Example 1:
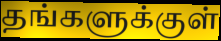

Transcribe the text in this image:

தங்களுக்குள்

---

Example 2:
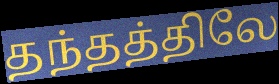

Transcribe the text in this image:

தந்தத்திலே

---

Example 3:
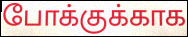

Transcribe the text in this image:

போக்குக்காக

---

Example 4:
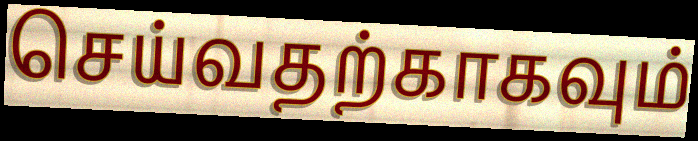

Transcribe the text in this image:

செய்வதற்காகவும்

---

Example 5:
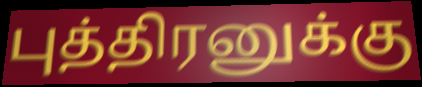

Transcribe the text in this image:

புத்திரனுக்கு